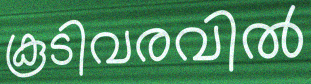
കൂടിവരവിൽ